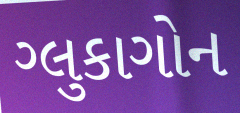
ગ્લુકાગોન